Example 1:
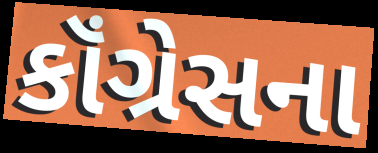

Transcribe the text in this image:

કૉંગ્રેસના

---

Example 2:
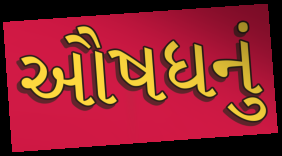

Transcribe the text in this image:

ઔષધનું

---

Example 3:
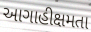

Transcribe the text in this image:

આગાહીક્ષમતા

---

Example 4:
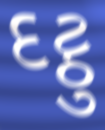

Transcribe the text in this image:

દટ્ઠુ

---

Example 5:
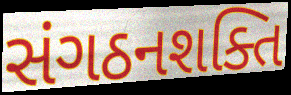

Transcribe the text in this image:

સંગઠનશક્તિ